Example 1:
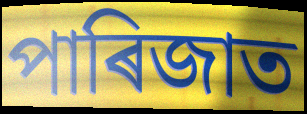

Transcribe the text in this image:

পাৰিজাত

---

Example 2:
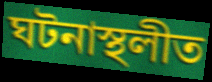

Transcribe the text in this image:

ঘটনাস্থলীত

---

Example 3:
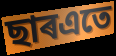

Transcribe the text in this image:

ছাৰএতে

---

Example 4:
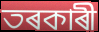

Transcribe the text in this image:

তৰকাৰী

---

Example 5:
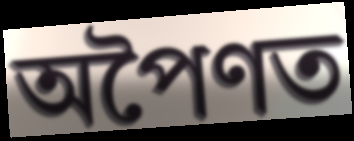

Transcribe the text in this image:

অপৈণত